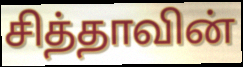
சித்தாவின்